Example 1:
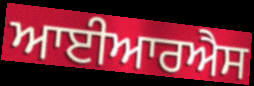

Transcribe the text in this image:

ਆਈਆਰਐਸ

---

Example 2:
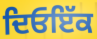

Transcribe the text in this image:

ਦਿਓਇੱਕ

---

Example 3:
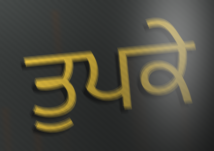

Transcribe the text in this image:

ਤੁਪਕੇ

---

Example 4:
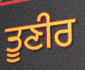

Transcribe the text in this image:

ਤੂਣੀਰ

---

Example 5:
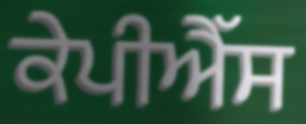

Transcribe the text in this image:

ਕੇਪੀਐੱਸ